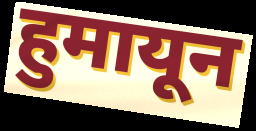
हुमायून